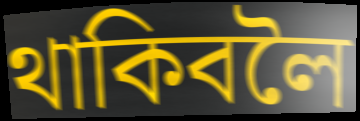
থাকিবলৈ